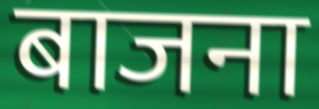
बाजना